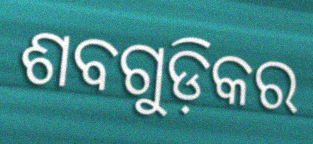
ଶବଗୁଡ଼ିକର